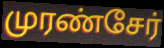
முரண்சேர்